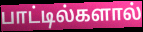
பாட்டில்களால்